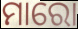
ମାରୋ